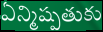
ఏన్మిష్పతుకు